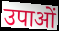
उपाओं